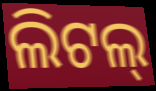
ଲିଟଲ୍